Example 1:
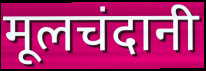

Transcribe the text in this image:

मूलचंदानी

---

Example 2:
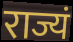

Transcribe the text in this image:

राज्यं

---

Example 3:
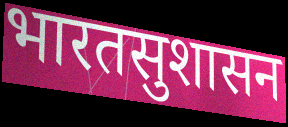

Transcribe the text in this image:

भारतसुशासन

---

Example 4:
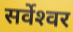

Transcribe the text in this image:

सर्वेश्‍वर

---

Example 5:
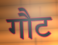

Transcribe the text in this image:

गौट